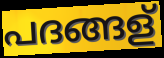
പദങ്ങള്